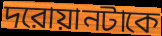
দরোয়ানটাকে